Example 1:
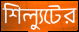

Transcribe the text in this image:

শিল্যুটের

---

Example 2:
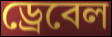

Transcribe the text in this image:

ড্রেবেল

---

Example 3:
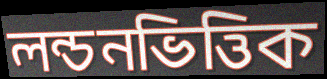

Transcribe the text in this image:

লন্ডনভিত্তিক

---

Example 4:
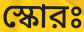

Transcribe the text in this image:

স্কোরঃ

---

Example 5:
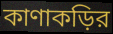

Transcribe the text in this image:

কাণাকড়ির